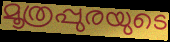
മൂത്രപ്പുരയുടെ